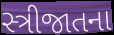
સ્ત્રીજાતના